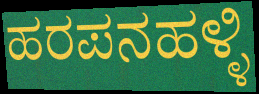
ಹರಪನಹಳ್ಳಿ